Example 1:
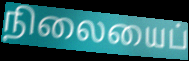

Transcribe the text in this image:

நிலையைப்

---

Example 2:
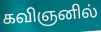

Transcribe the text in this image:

கவிஞனில்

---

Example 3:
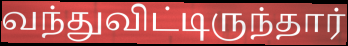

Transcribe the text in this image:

வந்துவிட்டிருந்தார்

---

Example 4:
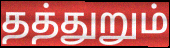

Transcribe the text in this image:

தத்துறும்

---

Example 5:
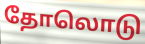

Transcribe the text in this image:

தோலொடு